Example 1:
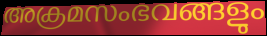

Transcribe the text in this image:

അക്രമസംഭവങ്ങളും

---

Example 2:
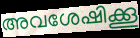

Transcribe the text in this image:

അവശേഷിക്കൂ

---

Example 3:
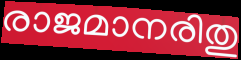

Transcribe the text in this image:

രാജമാനരിതു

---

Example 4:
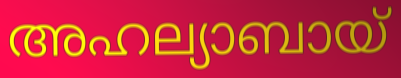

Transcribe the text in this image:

അഹല്യാബായ്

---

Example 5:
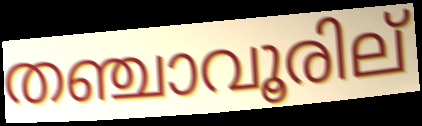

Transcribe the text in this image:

തഞ്ചാവൂരില്